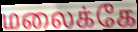
மலைக்கே